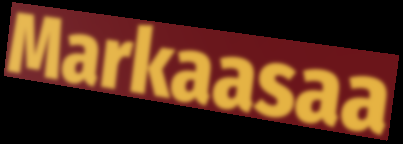
Markaasaa